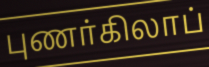
புணர்கிலாப்